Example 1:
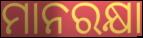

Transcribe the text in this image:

ମାନରକ୍ଷା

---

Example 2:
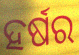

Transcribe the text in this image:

ହର୍ଷର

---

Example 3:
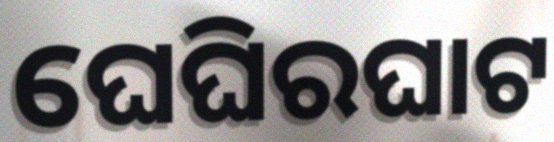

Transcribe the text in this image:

ଘେଘିରଘାଟ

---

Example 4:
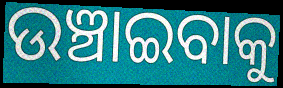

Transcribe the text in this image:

ଉଞ୍ଚାଇବାକୁ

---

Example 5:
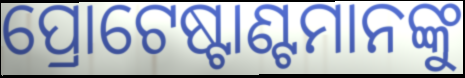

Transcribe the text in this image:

ପ୍ରୋଟେଷ୍ଟାଣ୍ଟମାନଙ୍କୁ